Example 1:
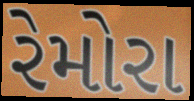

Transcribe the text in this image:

રેમોરા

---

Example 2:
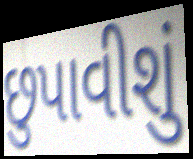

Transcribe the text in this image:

છુપાવીશું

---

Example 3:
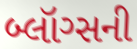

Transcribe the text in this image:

બ્લૉગ્સની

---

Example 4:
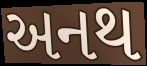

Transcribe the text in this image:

અનથ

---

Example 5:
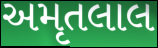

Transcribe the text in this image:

અમૃતલાલ